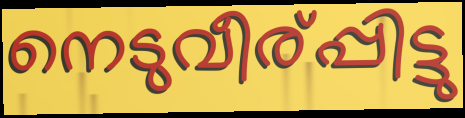
നെടുവീര്പ്പിട്ടു